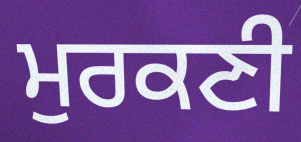
ਮੁਰਕਣੀ